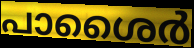
പാശൈർ